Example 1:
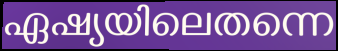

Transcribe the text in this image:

ഏഷ്യയിലെതന്നെ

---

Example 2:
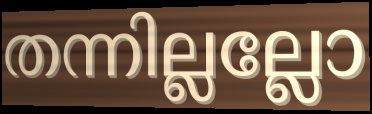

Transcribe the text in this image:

തന്നില്ലല്ലോ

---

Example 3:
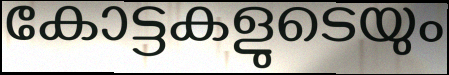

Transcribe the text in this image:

കോട്ടകളുടെയും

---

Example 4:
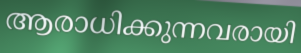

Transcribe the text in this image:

ആരാധിക്കുന്നവരായി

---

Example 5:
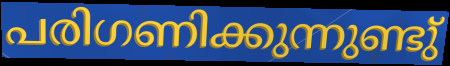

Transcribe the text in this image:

പരിഗണിക്കുന്നുണ്ടു്